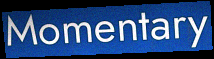
Momentary